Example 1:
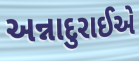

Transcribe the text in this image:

અન્નાદુરાઈએ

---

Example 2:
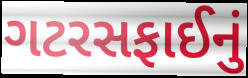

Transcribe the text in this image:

ગટરસફાઈનું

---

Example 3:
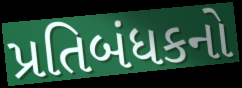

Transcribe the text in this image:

પ્રતિબંધકનો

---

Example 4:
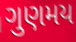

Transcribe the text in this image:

ગુણમય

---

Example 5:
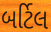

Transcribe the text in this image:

બર્ટિલ